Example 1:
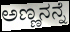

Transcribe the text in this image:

ಅಣ್ಣನನ್ನೆ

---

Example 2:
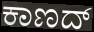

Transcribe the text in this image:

ಕಾಣದ್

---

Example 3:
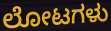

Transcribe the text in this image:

ಲೋಟಗಳು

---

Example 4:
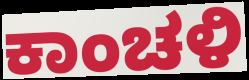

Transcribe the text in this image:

ಕಾಂಚಳಿ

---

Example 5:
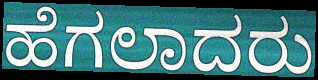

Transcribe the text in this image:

ಹೆಗಲಾದರು